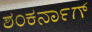
ಶಂಕರ್ನಾಗ್